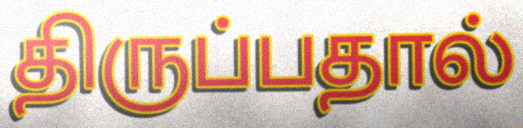
திருப்பதால்